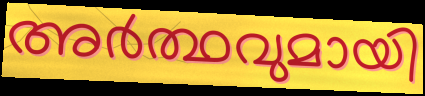
അർത്ഥവുമായി